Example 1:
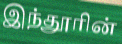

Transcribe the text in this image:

இந்தூரின்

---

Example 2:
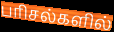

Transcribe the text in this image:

பரிசல்களில்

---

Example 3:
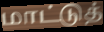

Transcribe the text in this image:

மாட்டுத்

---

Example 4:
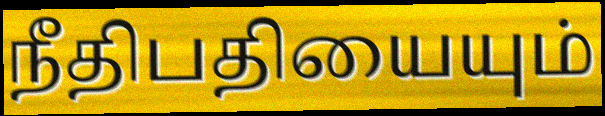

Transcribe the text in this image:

நீதிபதியையும்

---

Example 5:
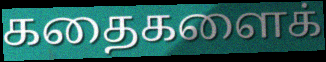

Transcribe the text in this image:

கதைகளைக்